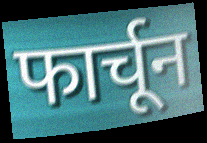
फार्चून